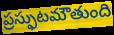
ప్రస్ఫుటమౌతుంది